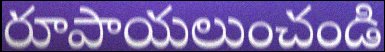
రూపాయలుంచండి